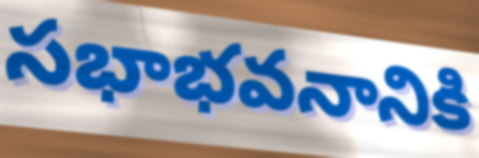
సభాభవనానికి